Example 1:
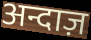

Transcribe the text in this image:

अन्दाज़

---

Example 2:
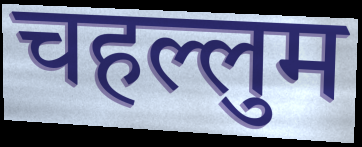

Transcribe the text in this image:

चहल्लुम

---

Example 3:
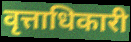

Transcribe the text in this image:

वृत्ताधिकारी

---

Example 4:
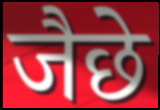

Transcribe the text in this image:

जैछे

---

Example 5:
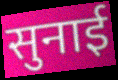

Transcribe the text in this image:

सुनाई